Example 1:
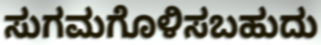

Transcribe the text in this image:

ಸುಗಮಗೊಳಿಸಬಹುದು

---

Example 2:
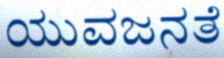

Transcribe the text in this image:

ಯುವಜನತೆ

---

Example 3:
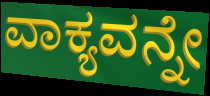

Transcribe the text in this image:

ವಾಕ್ಯವನ್ನೇ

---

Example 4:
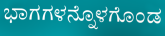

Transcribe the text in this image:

ಭಾಗಗಳನ್ನೊಳಗೊಂಡ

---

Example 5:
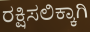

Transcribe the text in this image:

ರಕ್ಷಿಸಲಿಕ್ಕಾಗಿ